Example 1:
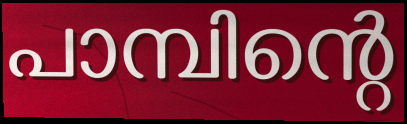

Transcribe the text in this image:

പാമ്പിന്റെ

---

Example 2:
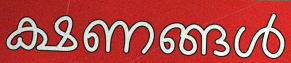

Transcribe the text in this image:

ക്ഷണങ്ങൾ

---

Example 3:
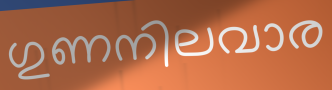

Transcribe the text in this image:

ഗുണനിലവാര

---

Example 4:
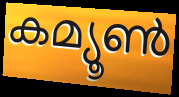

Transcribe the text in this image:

കമ്യൂൺ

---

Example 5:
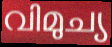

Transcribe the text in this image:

വിമുച്യ